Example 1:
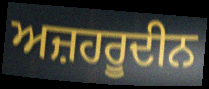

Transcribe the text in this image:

ਅਜ਼ਹਰੂਦੀਨ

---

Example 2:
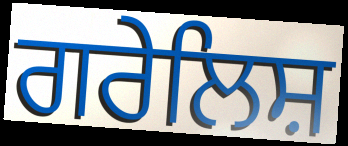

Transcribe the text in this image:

ਗਰੇਲਿਸ਼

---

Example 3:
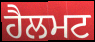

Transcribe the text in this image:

ਹੈਲਮਟ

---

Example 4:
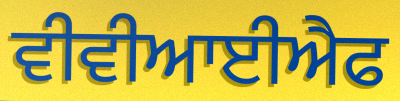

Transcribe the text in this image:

ਵੀਵੀਆਈਐਫ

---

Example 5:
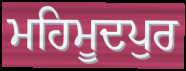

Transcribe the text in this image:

ਮਹਿਮੂਦਪੁਰ